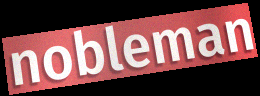
nobleman